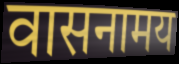
वासनामय